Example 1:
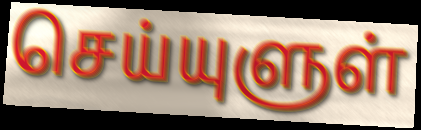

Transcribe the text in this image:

செய்யுளுள்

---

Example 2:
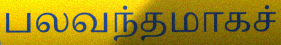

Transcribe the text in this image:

பலவந்தமாகச்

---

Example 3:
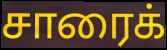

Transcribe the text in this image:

சாரைக்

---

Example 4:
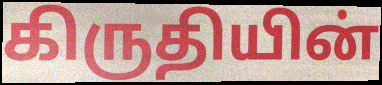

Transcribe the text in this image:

கிருதியின்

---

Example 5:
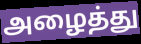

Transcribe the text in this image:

அழைத்து